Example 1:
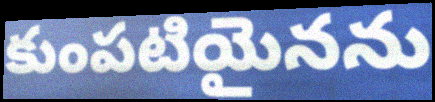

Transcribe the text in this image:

కుంపటియైనను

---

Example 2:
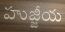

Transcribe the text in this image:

హుజ్జీయ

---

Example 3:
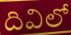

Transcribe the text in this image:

దివిలో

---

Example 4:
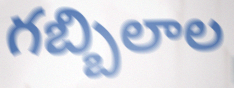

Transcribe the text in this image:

గబ్బిలాల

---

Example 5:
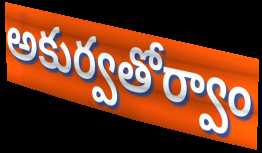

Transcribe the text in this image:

అకుర్వతోర్వాం